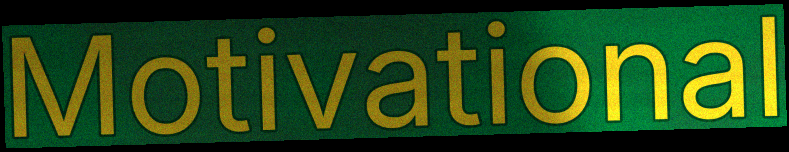
Motivational